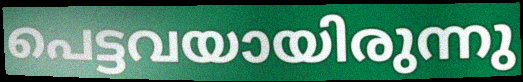
പെട്ടവയായിരുന്നു